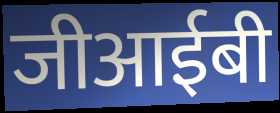
जीआईबी